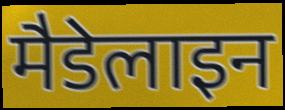
मैडेलाइन